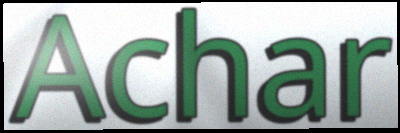
Achar